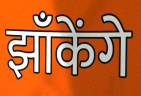
झाँकेंगे